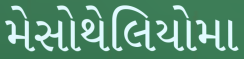
મેસોથેલિયોમા